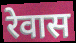
रेवास